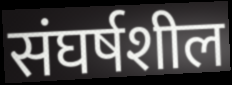
संघर्षशील